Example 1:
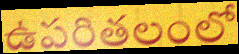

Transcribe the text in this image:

ఉపరితలంలో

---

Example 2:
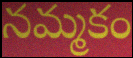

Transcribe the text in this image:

నమ్మకం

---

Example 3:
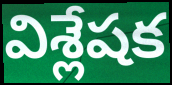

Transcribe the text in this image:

విశ్లేషక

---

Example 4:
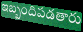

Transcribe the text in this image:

ఇబ్బందిపడతారు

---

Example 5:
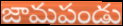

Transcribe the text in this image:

జామపండు